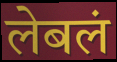
लेबलं